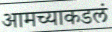
आमच्याकडलं